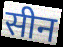
सीन